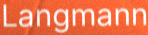
Langmann